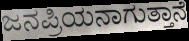
ಜನಪ್ರಿಯನಾಗುತ್ತಾನೆ